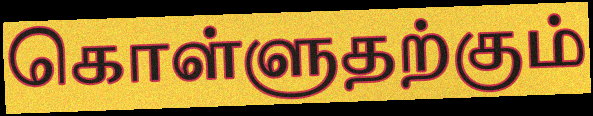
கொள்ளுதற்கும்